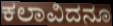
ಕಲಾವಿದನೂ